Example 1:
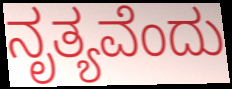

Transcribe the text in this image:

ನೃತ್ಯವೆಂದು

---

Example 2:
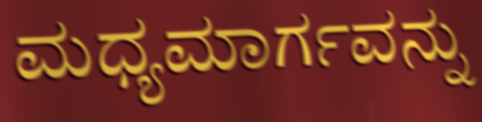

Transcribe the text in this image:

ಮಧ್ಯಮಾರ್ಗವನ್ನು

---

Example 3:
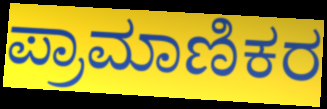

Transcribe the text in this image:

ಪ್ರಾಮಾಣಿಕರ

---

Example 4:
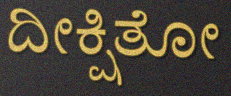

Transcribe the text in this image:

ದೀಕ್ಷಿತೋ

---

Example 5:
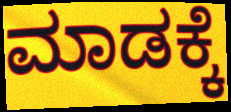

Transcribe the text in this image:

ಮಾಡಕ್ಕೆ